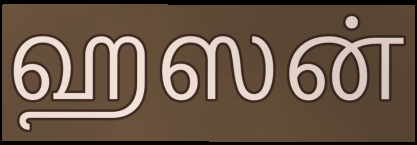
ஹஸன்